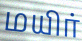
மயிர்